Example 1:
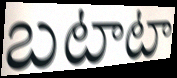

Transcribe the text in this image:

బటాటా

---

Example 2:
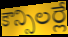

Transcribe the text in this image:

కౌన్సిలర్లే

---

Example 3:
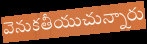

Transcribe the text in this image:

వెనుకతీయుచున్నారు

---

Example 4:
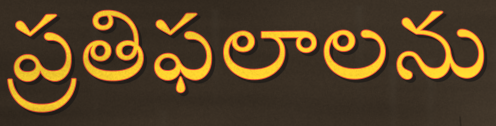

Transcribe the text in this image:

ప్రతిఫలాలను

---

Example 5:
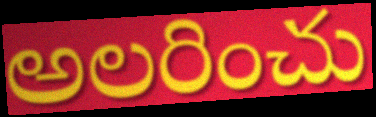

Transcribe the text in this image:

అలరించు